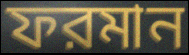
ফরমান